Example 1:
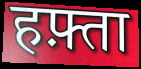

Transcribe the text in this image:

हफ़्ता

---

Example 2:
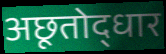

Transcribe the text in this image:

अछूतोद्धार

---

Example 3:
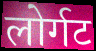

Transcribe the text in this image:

लोर्गट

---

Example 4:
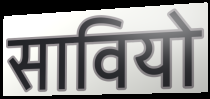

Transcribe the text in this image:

सावियो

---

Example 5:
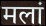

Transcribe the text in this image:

मलां